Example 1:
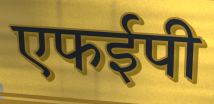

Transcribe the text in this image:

एफईपी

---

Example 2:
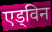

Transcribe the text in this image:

एड्विन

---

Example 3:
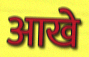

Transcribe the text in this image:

आखे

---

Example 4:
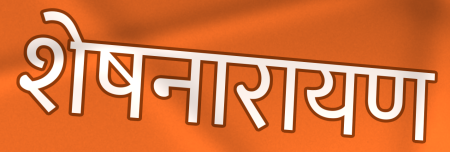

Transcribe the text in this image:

शेषनारायण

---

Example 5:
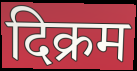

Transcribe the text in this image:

दिक्रम